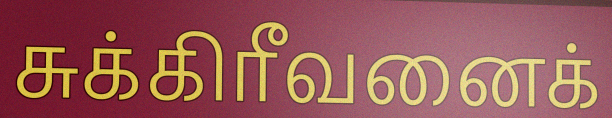
சுக்கிரீவனைக்